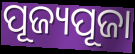
ପୂଜ୍ୟପୂଜା